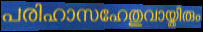
പരിഹാസഹേതുവായ്തീരും